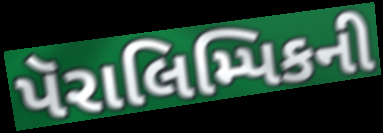
પૅરાલિમ્પિકની